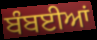
ਬੰਬਈਆਂ